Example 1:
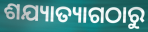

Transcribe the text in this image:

ଶଯ୍ୟାତ୍ୟାଗଠାରୁ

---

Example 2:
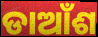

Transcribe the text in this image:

ଡାଆଁଶ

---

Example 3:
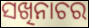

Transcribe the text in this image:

ସଖିନାଚର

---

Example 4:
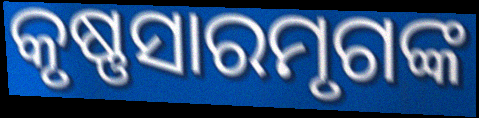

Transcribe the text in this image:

କୃଷ୍ଣସାରମୃଗଙ୍କ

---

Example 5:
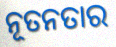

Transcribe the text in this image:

ନୂତନତାର